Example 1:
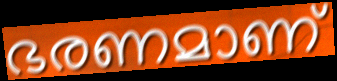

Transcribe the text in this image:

ഭരണമാണ്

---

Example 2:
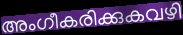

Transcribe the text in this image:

അംഗീകരിക്കുകവഴി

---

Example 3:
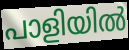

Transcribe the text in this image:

പാളിയിൽ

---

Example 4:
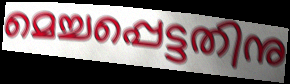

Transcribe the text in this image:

മെച്ചപ്പെട്ടതിനു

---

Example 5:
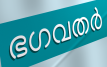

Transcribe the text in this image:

ഭഗവതർ